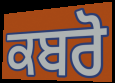
ਕਬਰੋ